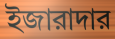
ইজারাদার